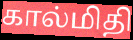
கால்மிதி